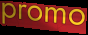
promo